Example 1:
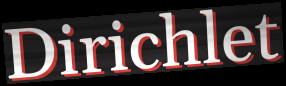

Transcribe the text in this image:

Dirichlet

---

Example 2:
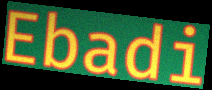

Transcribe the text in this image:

Ebadi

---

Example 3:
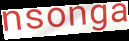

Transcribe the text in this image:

nsonga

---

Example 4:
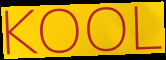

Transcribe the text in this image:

KOOL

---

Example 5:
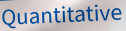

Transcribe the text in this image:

Quantitative